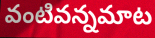
వంటివన్నమాట